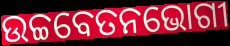
ଉଚ୍ଚବେତନଭୋଗୀ